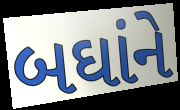
બઘાંને